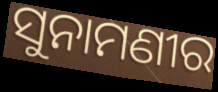
ସୁନାମଣୀର